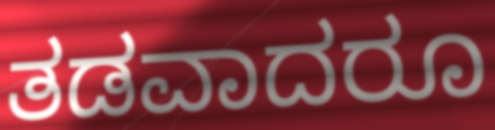
ತಡವಾದರೂ